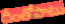
దీంతోపాటు